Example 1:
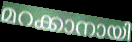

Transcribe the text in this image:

മറക്കാനായി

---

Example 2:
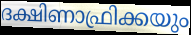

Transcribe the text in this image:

ദക്ഷിണാഫ്രിക്കയും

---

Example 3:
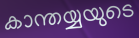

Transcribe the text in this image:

കാന്തയ്യയുടെ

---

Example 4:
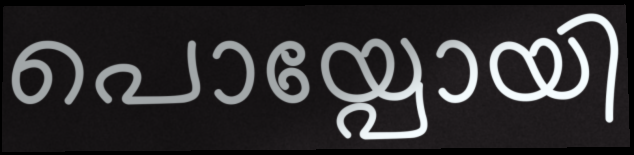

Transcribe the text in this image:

പൊയ്പോയി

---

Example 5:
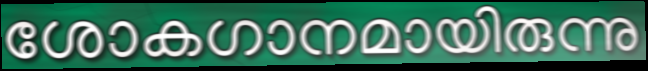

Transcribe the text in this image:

ശോകഗാനമായിരുന്നു